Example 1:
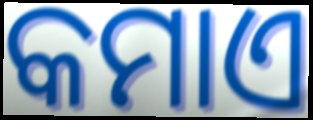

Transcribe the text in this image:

କମାଏ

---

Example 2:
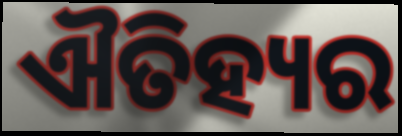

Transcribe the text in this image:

ଐତିହ୍ୟର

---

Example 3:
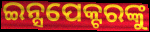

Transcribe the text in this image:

ଇନ୍ସପେକ୍ଟରଙ୍କୁ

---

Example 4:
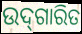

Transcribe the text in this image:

ଉଦ୍‌ଗାରିତ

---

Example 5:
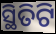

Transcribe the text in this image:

ସ୍ଥିତିଟି